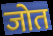
जोत